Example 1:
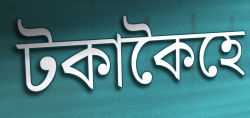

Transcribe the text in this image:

টকাকৈহে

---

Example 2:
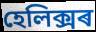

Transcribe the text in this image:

হেলিক্সৰ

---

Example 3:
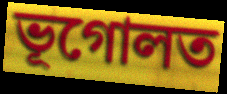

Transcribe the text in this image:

ভূগোলত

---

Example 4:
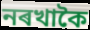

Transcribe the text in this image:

নৰখাকৈ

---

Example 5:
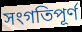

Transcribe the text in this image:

সংগতিপূৰ্ণ